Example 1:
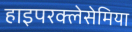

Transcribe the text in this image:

हाइपरक्लेसेमिया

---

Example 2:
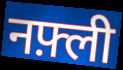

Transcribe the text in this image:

नफ़्ली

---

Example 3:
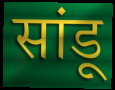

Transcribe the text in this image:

सांडू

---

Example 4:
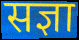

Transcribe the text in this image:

सज्ञा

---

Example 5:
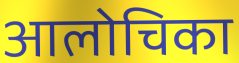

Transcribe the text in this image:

आलोचिका